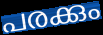
പരക്കും